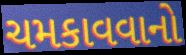
ચમકાવવાનો